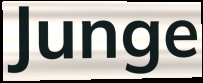
Junge